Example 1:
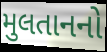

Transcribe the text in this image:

મુલતાનનો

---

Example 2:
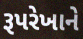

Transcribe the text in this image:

રૂપરેખાને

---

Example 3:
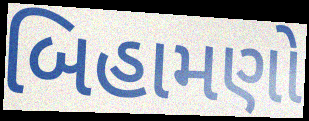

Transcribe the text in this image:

બિહામણો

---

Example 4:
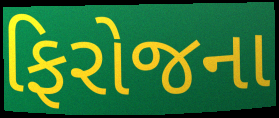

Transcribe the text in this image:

ફિરોજના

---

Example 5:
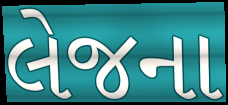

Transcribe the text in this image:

લેજના